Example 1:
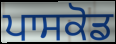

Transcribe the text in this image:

ਪਾਸਕੋਡ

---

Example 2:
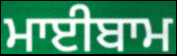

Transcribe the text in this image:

ਮਾਈਬਾਮ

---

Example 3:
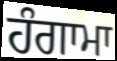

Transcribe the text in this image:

ਹੰਗਾਮਾ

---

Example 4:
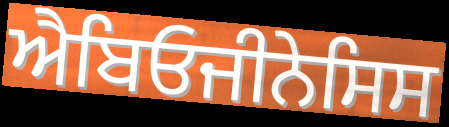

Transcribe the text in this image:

ਐਬਿਓਜੀਨੇਸਿਸ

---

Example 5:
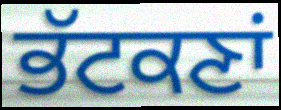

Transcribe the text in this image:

ਭੱਟਕਣਾਂ